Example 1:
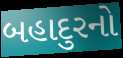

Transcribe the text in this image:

બહાદુરનો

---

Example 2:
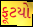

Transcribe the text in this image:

ફૂટયો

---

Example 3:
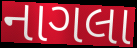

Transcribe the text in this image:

નાગલા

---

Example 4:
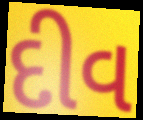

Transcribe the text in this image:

દીવ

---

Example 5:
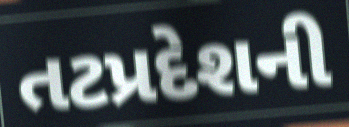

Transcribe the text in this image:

તટપ્રદેશની